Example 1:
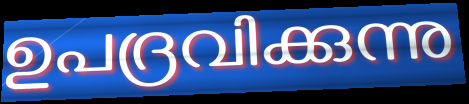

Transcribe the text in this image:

ഉപദ്രവിക്കുന്നു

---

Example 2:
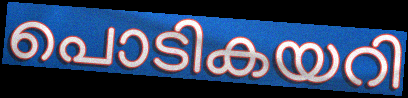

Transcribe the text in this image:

പൊടികയറി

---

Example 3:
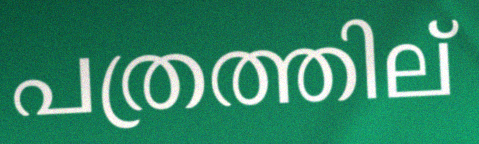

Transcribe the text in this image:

പത്രത്തില്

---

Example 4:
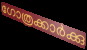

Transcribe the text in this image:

ഗോത്രക്കാർക്കു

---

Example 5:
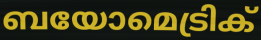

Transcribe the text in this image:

ബയോമെട്രിക്